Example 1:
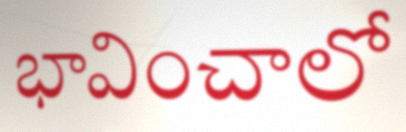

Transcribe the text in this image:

భావించాలో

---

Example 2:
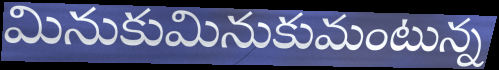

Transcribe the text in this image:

మినుకుమినుకుమంటున్న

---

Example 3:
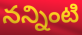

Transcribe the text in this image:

నన్నింటి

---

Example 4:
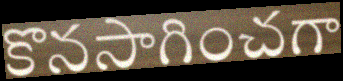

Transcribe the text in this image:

కొనసాగించగా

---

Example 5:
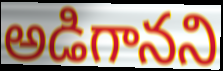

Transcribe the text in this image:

అడిగానని